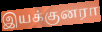
இயக்குனரா